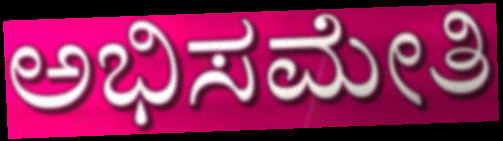
ಅಭಿಸಮೇತಿ